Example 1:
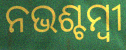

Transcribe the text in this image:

ନଭଶ୍ଚମ୍ବୀ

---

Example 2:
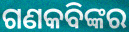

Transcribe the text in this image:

ଗଣକବିଙ୍କର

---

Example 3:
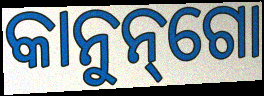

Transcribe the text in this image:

କାନୁନ୍‌ଗୋ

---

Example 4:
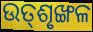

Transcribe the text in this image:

ଉତ୍‌ଶୃଙ୍ଖଳ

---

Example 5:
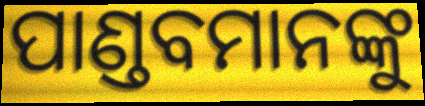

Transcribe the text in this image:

ପାଣ୍ଡବମାନଙ୍କୁ